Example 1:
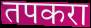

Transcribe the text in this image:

तपकरा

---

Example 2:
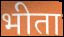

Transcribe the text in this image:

भीता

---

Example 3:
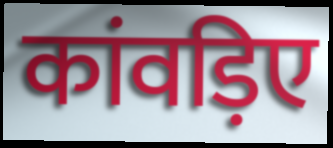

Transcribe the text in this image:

कांवड़िए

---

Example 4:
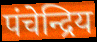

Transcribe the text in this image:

पंचेन्द्रिय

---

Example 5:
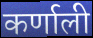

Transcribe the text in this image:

कर्णाली